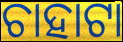
ଚାହାଟା